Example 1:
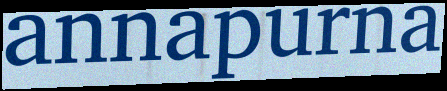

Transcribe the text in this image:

annapurna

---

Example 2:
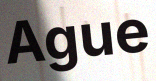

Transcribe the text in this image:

Ague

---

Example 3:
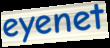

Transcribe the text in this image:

eyenet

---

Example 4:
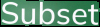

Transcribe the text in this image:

Subset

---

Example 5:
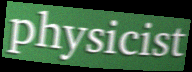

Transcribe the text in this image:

physicist